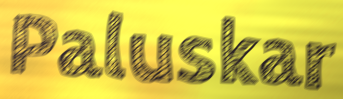
Paluskar